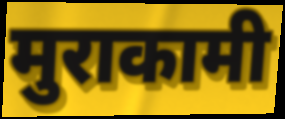
मुराकामी